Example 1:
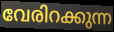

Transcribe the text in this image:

വേരിറക്കുന്ന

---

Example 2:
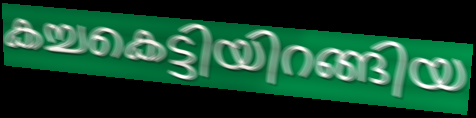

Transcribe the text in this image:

കച്ചകെട്ടിയിറങ്ങിയ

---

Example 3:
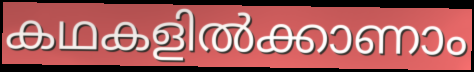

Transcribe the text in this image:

കഥകളിൽക്കാണാം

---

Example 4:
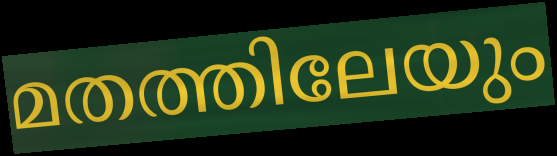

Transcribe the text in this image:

മതത്തിലേയും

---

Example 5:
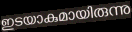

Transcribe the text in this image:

ഇടയാകുമായിരുന്നു